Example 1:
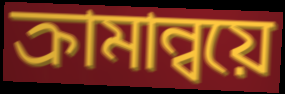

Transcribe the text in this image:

ক্রামান্বয়ে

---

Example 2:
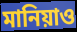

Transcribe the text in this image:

মানিয়াও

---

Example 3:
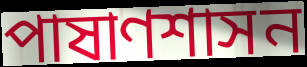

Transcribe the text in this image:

পাষাণশাসন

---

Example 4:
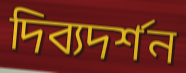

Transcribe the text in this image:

দিব্যদর্শন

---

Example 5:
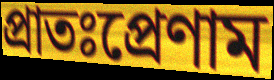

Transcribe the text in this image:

প্রাতঃপ্রেণাম